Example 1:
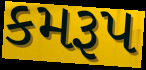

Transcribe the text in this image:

કમરૂપ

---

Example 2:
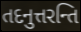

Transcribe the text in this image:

તદનુત્તરન્તિ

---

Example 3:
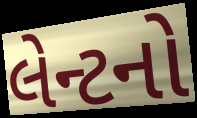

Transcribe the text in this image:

લેન્ટનો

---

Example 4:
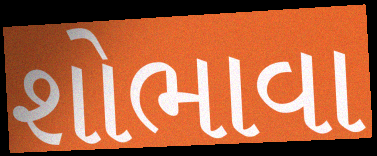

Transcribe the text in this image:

શોભાવા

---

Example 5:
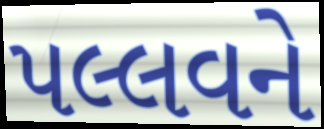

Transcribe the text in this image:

પલ્લવને